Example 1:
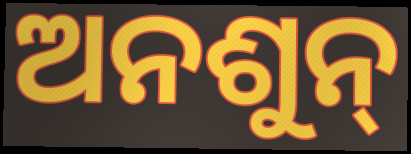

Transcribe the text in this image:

ଅନଶୁନ୍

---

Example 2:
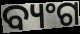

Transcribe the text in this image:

ବ୍ୟଂଗ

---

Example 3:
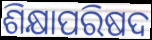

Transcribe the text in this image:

ଶିକ୍ଷାପରିଷଦ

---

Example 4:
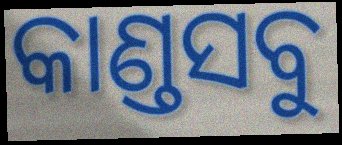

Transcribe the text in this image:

କାଣ୍ଡସବୁ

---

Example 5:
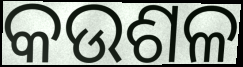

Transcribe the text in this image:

କଉଶଳ